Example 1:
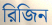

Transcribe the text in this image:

রিজিন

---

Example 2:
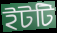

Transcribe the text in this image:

ইটটি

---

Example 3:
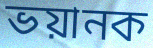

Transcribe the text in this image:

ভয়ানক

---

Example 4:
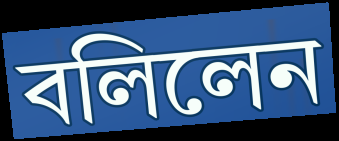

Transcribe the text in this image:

বলিলেন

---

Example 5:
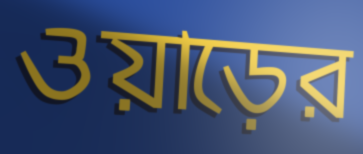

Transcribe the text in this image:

ওয়াড়ের